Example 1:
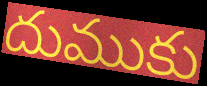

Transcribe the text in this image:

దుముకు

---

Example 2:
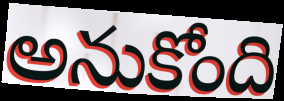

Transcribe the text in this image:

అనుకోంది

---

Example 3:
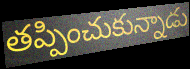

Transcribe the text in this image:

తప్పించుకున్నాడు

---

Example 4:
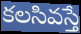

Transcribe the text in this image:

కలసివస్తే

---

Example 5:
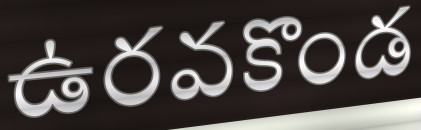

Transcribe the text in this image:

ఉరవకొండ